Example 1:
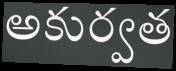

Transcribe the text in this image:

అకుర్వత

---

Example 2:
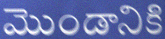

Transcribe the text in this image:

మొండానికి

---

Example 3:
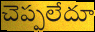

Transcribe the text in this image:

చెప్పలేదూ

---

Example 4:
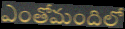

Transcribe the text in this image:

ఎంతోమందిలో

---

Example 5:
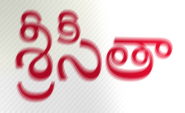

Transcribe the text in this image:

శ్రీసీతా